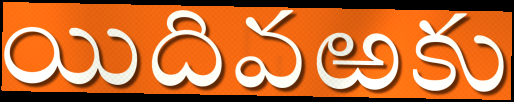
యిదివఱకు